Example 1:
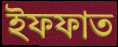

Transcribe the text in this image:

ইফফাত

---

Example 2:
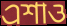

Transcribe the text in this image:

এশাও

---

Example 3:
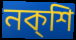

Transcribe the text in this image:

নক্‌শি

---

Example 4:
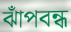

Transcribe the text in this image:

ঝাঁপবন্ধ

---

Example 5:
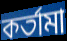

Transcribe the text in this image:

কর্তামা